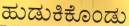
ಹುಡುಕಿಕೊಂಡು